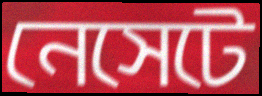
নেসেটে